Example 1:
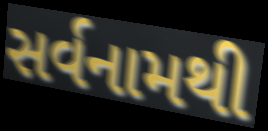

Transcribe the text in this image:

સર્વનામથી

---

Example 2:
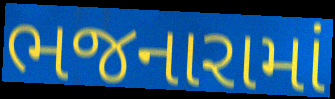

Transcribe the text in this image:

ભજનારામાં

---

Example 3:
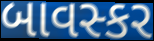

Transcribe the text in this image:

બાવસ્કર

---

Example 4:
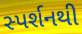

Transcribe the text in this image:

સ્પર્શનથી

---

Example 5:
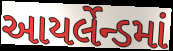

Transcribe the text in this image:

આયર્લેન્ડમાં